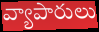
వ్యాపారులు